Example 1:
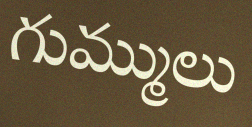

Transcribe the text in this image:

గుమ్ములు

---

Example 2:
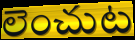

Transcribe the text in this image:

లెంచుట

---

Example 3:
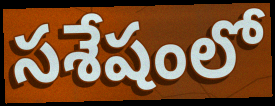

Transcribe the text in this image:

సశేషంలో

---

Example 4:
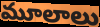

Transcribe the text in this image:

మూలాలు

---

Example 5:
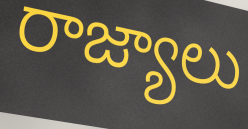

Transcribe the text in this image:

రాజ్యాలు